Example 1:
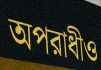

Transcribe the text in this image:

অপরাধীও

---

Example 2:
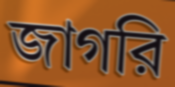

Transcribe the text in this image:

জাগরি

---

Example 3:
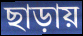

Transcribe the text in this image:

ছাড়ায়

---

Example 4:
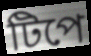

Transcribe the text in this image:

টিপে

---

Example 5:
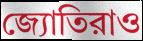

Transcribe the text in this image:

জ্যোতিরাও